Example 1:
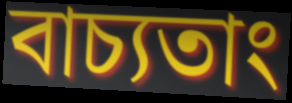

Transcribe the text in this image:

বাচ্যতাং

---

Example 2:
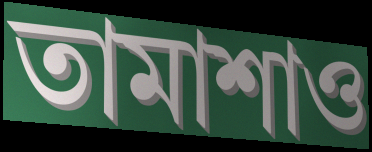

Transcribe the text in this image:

তামাশাও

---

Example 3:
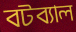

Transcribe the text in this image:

বটব্যাল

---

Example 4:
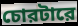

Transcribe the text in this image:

চোরটারে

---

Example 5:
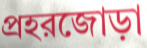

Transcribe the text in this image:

প্রহরজোড়া